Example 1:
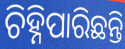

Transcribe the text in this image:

ଚିହ୍ନିପାରିଛନ୍ତି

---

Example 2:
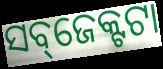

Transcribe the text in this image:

ସବ୍‌ଜେକ୍ଟଟା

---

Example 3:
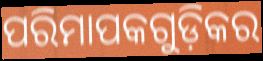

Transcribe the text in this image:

ପରିମାପକଗୁଡ଼ିକର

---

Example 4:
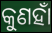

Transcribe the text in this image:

କୁଣହାଁ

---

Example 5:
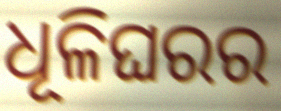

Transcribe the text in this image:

ଧୂଳିଘରର